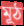
মূঠ